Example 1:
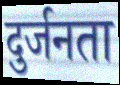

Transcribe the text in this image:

दुर्जनता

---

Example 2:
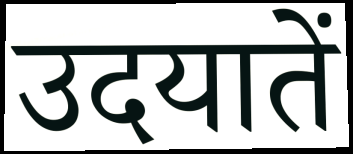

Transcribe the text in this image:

उदयातें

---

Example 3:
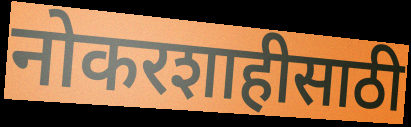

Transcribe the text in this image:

नोकरशाहीसाठी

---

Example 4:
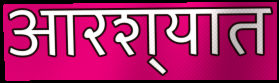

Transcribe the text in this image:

आरश्यात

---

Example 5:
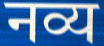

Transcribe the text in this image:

नव्य